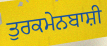
ਤੁਰਕਮੇਨਬਾਸ਼ੀ